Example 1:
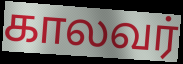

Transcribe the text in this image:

காலவர்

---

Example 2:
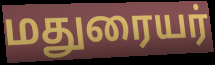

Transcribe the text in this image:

மதுரையர்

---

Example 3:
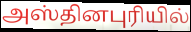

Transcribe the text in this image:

அஸ்தினபுரியில்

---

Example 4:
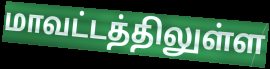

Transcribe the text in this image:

மாவட்டத்திலுள்ள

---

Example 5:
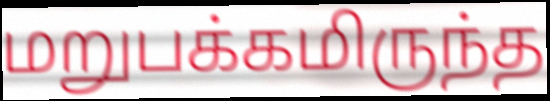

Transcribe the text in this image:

மறுபக்கமிருந்த